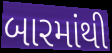
બારમાંથી